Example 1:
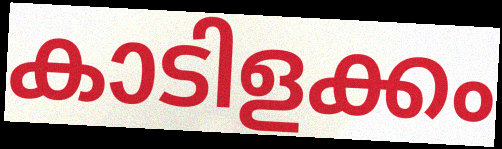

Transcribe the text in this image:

കാടിളക്കം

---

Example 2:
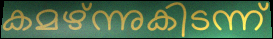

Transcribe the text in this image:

കമഴ്ന്നുകിടന്ന്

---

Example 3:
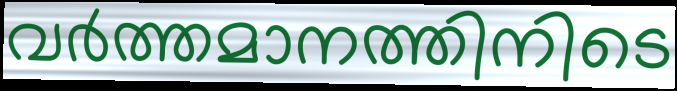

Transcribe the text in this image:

വർത്തമാനത്തിനിടെ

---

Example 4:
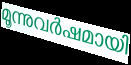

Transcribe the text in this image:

മൂന്നുവർഷമായി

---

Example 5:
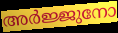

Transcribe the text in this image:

അർജ്ജുനോ